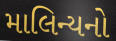
માલિન્યનો